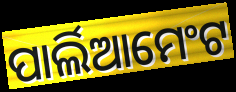
ପାର୍ଲିଆମେଂଟ